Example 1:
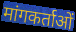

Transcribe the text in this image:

मांगकर्ताओं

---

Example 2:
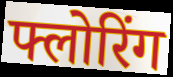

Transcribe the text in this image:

फ्लोरिंग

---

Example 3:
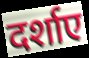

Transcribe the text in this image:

दर्शाए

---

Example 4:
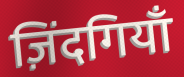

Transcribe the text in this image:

ज़िंदगियाँ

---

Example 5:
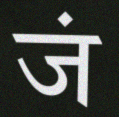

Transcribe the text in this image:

जं